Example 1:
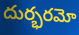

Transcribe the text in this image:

దుర్భరమో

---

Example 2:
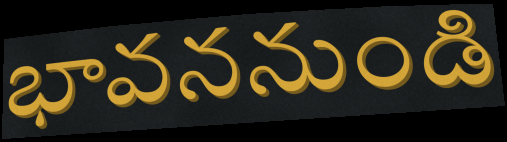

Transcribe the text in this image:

భావననుండి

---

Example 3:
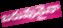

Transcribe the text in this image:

బరువునైనా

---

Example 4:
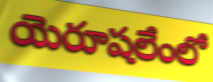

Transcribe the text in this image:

యెరూషలేంలో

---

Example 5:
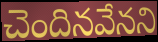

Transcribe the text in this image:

చెందినవేనని